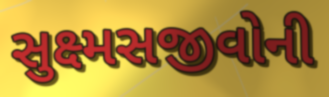
સુક્ષ્મસજીવોની